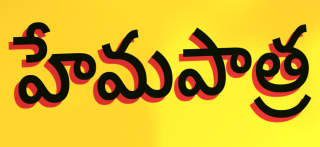
హేమపాత్ర